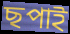
ছপাই